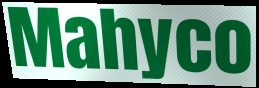
Mahyco